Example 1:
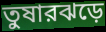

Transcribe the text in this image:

তুষারঝড়ে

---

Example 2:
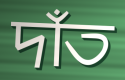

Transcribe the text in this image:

দাঁত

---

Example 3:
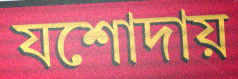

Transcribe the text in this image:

যশোদায়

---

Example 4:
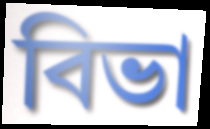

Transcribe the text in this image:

বিভা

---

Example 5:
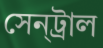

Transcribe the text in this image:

সেন্‌ট্রাল